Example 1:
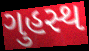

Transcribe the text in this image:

ગુહસ્થ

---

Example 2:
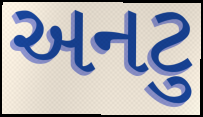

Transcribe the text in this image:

અનટુ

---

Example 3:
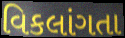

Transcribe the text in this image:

વિકલાંગતા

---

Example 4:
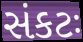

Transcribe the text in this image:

સંકટઃ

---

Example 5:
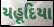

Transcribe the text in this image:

યહૂદિયા